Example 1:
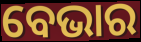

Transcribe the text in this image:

ବେଭାର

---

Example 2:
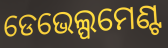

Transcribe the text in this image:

ଡେଭେଲ୍ପମେଣ୍ଟ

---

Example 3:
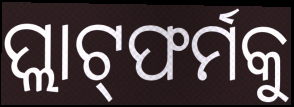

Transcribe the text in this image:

ପ୍ଲାଟ୍‌ଫର୍ମକୁ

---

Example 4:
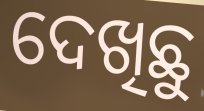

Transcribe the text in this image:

ଦେଖିଛୁ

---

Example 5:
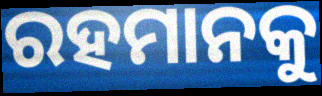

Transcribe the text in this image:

ରହମାନକୁ